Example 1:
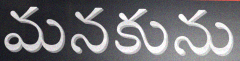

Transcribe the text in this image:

మనకును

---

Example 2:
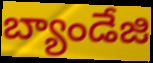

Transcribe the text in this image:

బ్యాండేజి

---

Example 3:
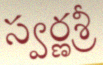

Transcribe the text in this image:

స్వర్ణశ్రీ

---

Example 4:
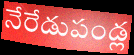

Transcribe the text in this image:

నేరేడుపండ్ల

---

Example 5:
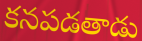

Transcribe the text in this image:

కనపడతాడు